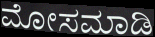
ಮೋಸಮಾಡಿ